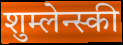
शुम्लेन्स्की